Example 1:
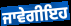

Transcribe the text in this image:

ਜਾਵੇਗੀਇਹ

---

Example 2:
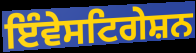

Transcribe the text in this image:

ਇੰਵੇਸਟਿਗੇਸ਼ਨ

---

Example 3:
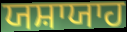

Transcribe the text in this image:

ਯਸ਼ਾਯਾਹ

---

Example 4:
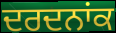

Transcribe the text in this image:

ਦਰਦਨਾਂਕ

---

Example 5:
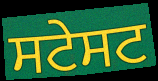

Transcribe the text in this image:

ਸਟੇਸਟ